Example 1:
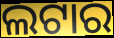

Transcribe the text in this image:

ଲଟାର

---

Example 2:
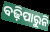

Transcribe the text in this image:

ବଢ଼ିପାରୁନି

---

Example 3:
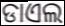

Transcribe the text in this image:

ଡାଏଲ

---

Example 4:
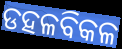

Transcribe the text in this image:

ଡହଳବିକଳ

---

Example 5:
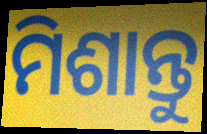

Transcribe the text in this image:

ମିଶାନ୍ତୁ